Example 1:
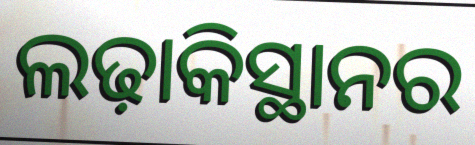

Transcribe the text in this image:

ଲଢ଼ାକିସ୍ଥାନର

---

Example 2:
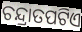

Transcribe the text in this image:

ଚନ୍ଦ୍ରାତପଟିଏ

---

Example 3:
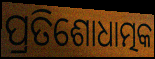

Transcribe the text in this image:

ପ୍ରତିଶୋଧାତ୍ମକ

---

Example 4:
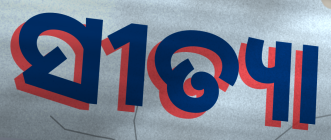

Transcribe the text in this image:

ସୀତ୍ୟା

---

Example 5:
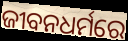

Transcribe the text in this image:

ଜୀବନଧର୍ମରେ